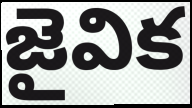
జైవిక